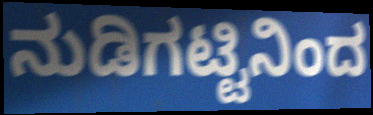
ನುಡಿಗಟ್ಟಿನಿಂದ